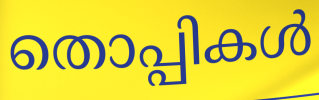
തൊപ്പികൾ